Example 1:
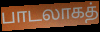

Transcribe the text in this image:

பாடலாகத்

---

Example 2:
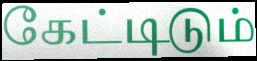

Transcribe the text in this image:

கேட்டிடும்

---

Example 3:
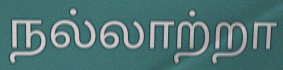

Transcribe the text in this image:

நல்லாற்றா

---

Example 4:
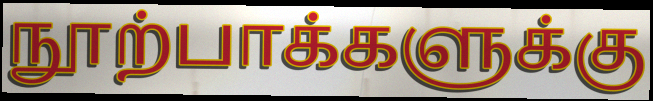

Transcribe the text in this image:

நூற்பாக்களுக்கு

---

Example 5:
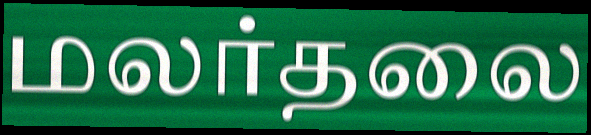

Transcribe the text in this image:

மலர்தலை